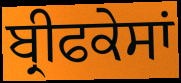
ਬ੍ਰੀਫਕੇਸਾਂ